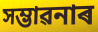
সম্ভাৱনাৰ